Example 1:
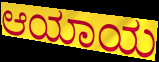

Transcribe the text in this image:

ಆಯಾಯ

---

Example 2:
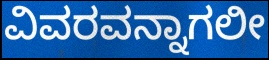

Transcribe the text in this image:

ವಿವರವನ್ನಾಗಲೀ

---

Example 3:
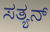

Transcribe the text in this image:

ಸತ್ಯನ್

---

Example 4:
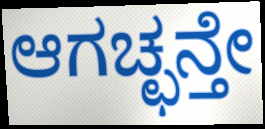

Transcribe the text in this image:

ಆಗಚ್ಛನ್ತೇ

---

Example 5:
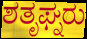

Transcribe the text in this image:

ಶತೃಘ್ನರು